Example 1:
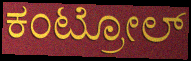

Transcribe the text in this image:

ಕಂಟ್ರೋಲ್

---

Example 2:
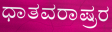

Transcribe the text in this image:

ಧಾತವರಾಷ್ರರ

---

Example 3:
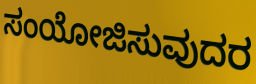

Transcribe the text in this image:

ಸಂಯೋಜಿಸುವುದರ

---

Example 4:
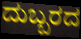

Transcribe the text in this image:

ದುಬ್ಬರದ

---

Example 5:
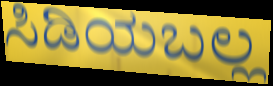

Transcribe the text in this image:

ಸಿಡಿಯಬಲ್ಲ